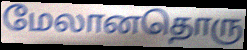
மேலானதொரு